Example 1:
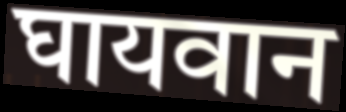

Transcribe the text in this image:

घायवान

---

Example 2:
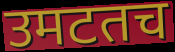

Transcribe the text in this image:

उमटतच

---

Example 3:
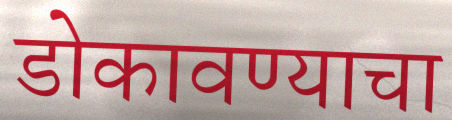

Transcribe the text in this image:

डोकावण्याचा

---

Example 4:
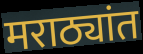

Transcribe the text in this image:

मराठ्यांत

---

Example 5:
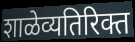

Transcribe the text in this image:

शाळेव्यतिरिक्त